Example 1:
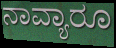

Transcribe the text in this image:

ನಾವ್ಯಾರೂ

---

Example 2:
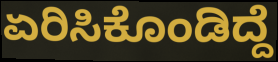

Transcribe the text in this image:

ಏರಿಸಿಕೊಂಡಿದ್ದೆ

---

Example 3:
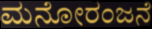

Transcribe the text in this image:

ಮನೋರಂಜನೆ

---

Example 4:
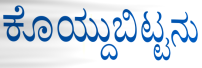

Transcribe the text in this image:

ಕೊಯ್ದುಬಿಟ್ಟನು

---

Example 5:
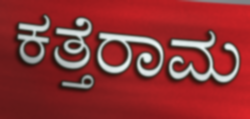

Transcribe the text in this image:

ಕತ್ತೆರಾಮ